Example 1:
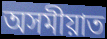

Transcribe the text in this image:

অসমীয়াত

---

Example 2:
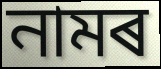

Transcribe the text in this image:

নামৰ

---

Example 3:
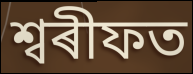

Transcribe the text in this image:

শ্বৰীফত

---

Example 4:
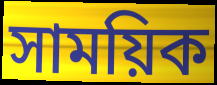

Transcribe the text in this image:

সাময়িক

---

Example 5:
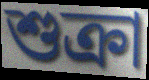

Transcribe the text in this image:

শুক্ৰা